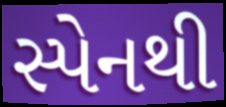
સ્પેનથી